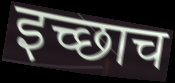
इच्छाच